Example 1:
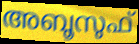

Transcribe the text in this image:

അബൂസുഫ്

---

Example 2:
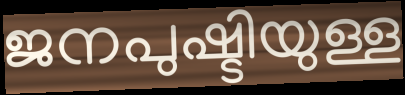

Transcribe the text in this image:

ജനപുഷ്ടിയുള്ള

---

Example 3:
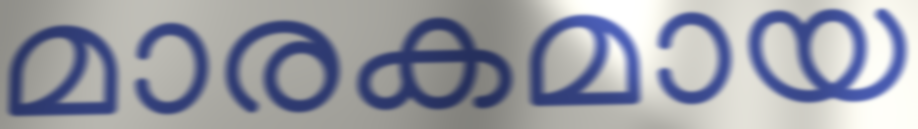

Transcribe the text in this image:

മാരകമായ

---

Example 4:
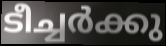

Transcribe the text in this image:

ടീച്ചർക്കു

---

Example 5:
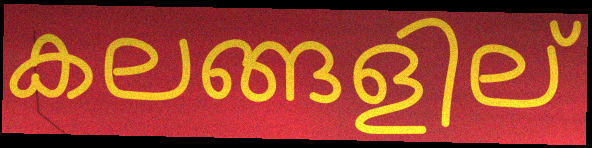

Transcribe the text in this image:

കലങ്ങളില്